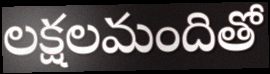
లక్షలమందితో